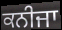
ਕਨੀਜਾ